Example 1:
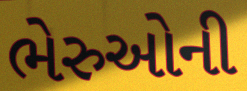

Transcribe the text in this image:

ભેરુઓની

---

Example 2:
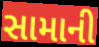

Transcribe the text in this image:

સામાની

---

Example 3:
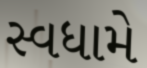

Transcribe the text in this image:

સ્વધામે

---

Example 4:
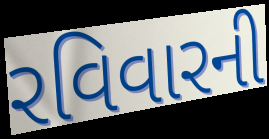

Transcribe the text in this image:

રવિવારની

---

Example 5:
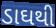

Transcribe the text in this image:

ડાઘથી